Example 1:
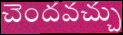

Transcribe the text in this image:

చెందవచ్చు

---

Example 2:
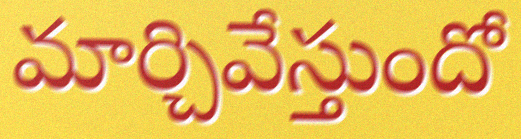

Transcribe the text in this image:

మార్చివేస్తుందో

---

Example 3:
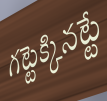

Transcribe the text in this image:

గట్టెక్కినట్టే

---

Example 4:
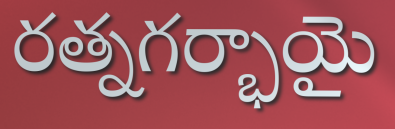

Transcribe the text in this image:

రత్నగర్భాయై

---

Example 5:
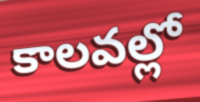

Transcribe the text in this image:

కాలవల్లో